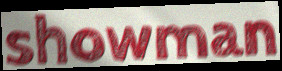
showman